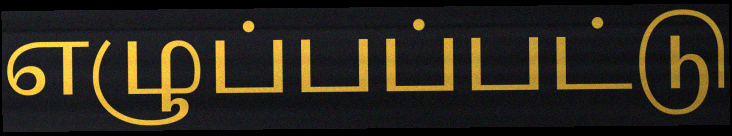
எழுப்பப்பட்டு